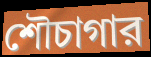
শৌচাগার